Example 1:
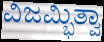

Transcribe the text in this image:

ವಿಜಮ್ಭಿತ್ವಾ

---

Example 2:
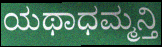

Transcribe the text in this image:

ಯಥಾಧಮ್ಮನ್ತಿ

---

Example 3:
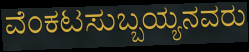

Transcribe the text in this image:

ವೆಂಕಟಸುಬ್ಬಯ್ಯನವರು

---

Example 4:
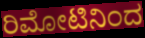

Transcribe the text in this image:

ರಿಮೋಟಿನಿಂದ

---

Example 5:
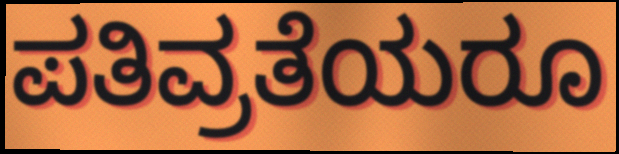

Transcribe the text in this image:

ಪತಿವ್ರತೆಯರೂ